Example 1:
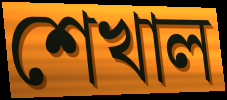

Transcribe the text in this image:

শেখাল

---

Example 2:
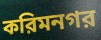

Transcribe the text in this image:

করিমনগর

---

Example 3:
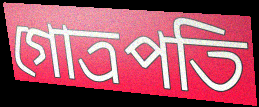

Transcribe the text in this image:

গোত্রপতি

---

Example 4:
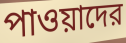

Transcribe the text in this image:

পাওয়াদের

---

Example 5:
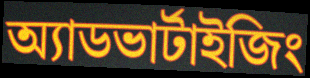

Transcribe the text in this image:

অ্যাডভার্টাইজিং